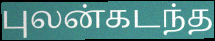
புலன்கடந்த